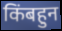
किंबहुन